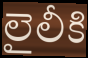
లైలీకి